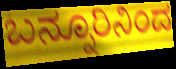
ಬನ್ನೂರಿನಿಂದ